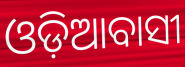
ଓଡ଼ିଆବାସୀ